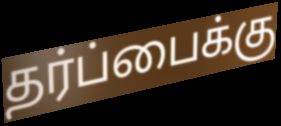
தர்ப்பைக்கு